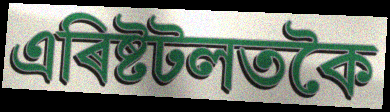
এৰিষ্টটলতকৈ